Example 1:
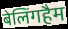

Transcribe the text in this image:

बेलिंगहैम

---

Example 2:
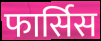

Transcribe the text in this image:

फार्सिस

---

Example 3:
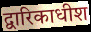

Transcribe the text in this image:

द्वारिकाधीश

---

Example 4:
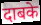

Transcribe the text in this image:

दाबके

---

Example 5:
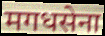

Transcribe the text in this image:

मगधसेना